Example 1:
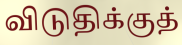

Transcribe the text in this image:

விடுதிக்குத்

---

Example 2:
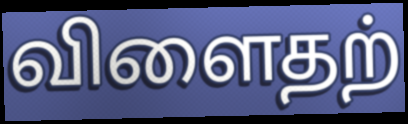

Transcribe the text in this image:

விளைதற்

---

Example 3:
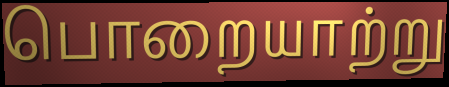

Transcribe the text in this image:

பொறையாற்று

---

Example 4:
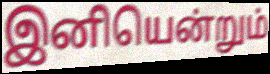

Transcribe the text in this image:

இனியென்றும்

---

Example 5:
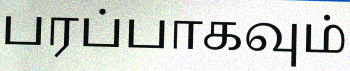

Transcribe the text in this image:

பரப்பாகவும்